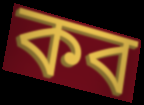
কব